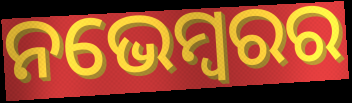
ନଭେମ୍ବରର